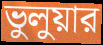
ভুলুয়ার